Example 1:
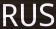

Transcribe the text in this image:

RUS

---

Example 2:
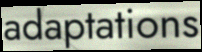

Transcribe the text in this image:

adaptations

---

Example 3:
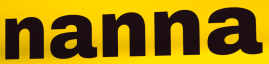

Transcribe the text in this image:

nanna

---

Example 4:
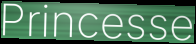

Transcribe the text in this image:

Princesse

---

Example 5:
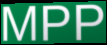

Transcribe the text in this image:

MPP